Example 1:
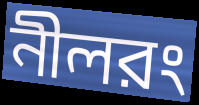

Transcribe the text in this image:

নীলরং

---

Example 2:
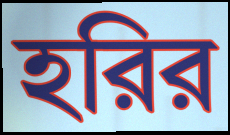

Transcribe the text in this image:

হরির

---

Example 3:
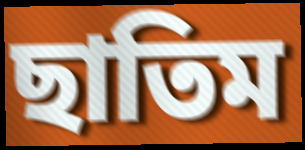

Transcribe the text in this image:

ছাতিম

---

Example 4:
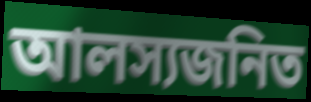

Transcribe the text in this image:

আলস্যজনিত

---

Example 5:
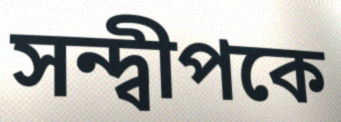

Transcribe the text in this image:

সন্দ্বীপকে